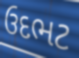
ઉદભટ